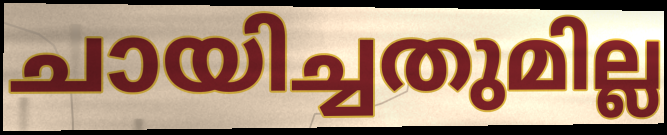
ചായിച്ചതുമില്ല